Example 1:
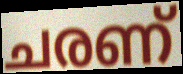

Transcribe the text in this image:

ചരണ്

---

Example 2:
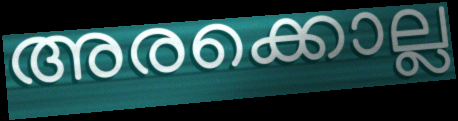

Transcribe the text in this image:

അരക്കൊല്ല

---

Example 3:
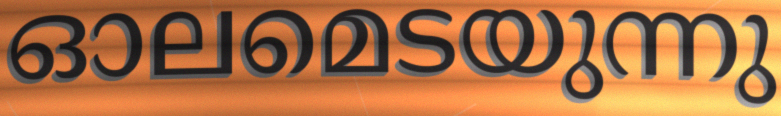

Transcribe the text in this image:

ഓലമെടയുന്നു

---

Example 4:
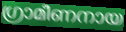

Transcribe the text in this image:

ഗ്രാമീണനായ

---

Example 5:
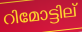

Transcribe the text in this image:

റിമോട്ടില്